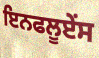
ਇਨਫਲੂਏਂਸ